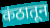
कंठातून